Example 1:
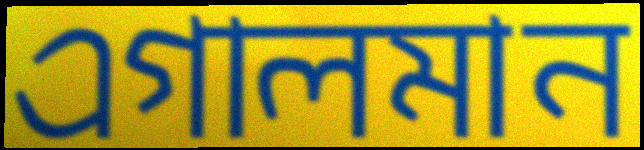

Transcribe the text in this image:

এগালমান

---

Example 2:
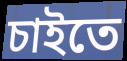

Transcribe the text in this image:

চাইতে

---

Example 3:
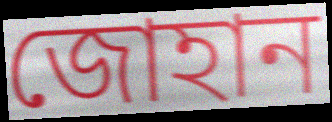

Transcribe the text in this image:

জোহান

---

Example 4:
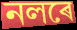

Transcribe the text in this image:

নলৰে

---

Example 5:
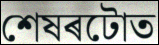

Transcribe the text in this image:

শেষৰটোত